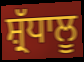
ਸ਼੍ਰੱਧਾਲੂ